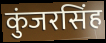
कुंजरसिंह